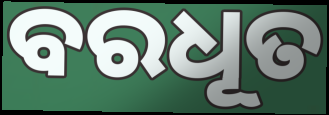
ବରଧୂତ